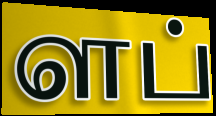
ளப்